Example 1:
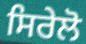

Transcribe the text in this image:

ਸਿਰੇਲੋ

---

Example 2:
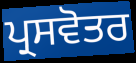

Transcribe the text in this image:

ਪ੍ਰਸਵੋਤਰ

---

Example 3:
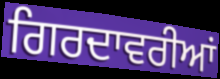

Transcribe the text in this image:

ਗਿਰਦਾਵਰੀਆਂ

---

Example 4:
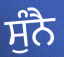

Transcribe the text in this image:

ਸੁੰਨੈ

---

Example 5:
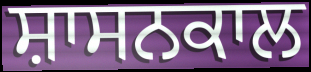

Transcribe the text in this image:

ਸ਼ਾਸਨਕਾਲ